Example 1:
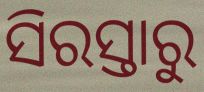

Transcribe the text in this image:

ସିରସ୍ତାରୁ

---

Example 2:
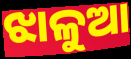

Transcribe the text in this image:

ଝାଳୁଆ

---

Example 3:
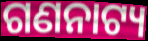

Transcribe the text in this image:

ଗଣନାଟ୍ୟ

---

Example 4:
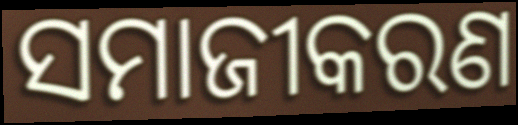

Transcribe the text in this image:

ସମାଜୀକରଣ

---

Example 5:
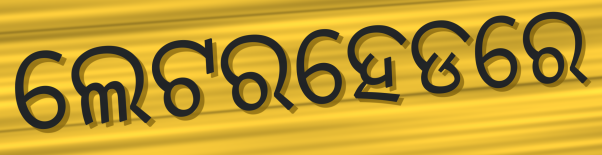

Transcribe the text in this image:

ଲେଟରହେଡରେ